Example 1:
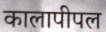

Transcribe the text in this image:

कालापीपल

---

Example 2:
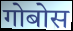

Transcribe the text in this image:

गोबोस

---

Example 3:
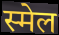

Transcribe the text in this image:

स्‍मेल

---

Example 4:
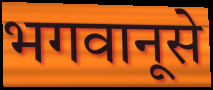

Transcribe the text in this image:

भगवानूसे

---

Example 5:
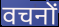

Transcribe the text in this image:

वचनों